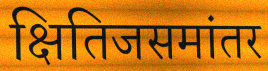
क्षितिजसमांतर